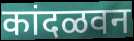
कांदळवन